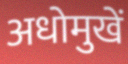
अधोमुखें